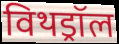
विथड्रॉल